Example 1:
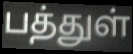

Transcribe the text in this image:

பத்துள்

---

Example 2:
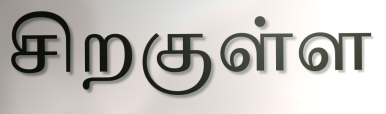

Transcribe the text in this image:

சிறகுள்ள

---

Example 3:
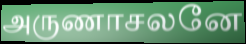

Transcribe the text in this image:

அருணாசலனே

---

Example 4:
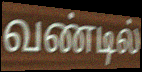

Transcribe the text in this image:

வண்டில்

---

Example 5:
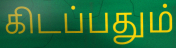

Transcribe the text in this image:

கிடப்பதும்